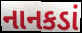
નાનકડાં